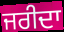
ਜਰੀਦਾ